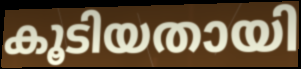
കൂടിയതായി